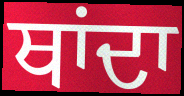
ਥਾਂਦਾ